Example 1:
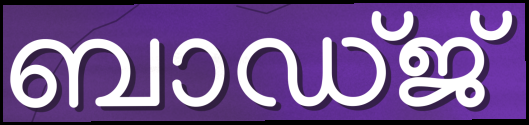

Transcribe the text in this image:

ബാഡ്ജ്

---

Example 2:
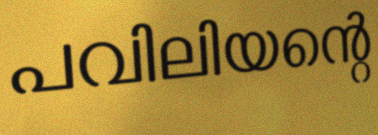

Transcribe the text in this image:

പവിലിയന്റെ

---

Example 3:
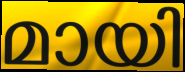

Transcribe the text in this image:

മായി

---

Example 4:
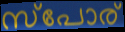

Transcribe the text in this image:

സ്പോര്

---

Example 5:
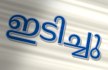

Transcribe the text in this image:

ഇടിച്ചു